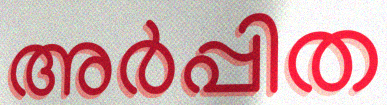
അർപ്പിത